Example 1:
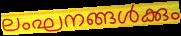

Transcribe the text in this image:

ലംഘനങ്ങൾക്കും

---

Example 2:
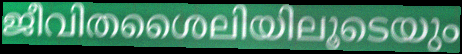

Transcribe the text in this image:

ജീവിതശൈലിയിലൂടെയും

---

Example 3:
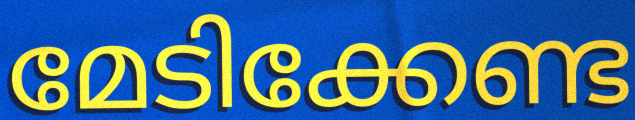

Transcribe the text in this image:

മേടിക്കേണ്ട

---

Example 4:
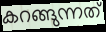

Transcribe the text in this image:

കറങ്ങുന്നത്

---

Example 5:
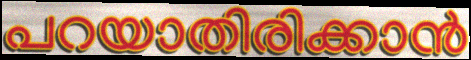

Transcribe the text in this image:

പറയാതിരിക്കാൻ